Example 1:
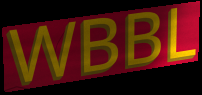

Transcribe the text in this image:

WBBL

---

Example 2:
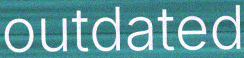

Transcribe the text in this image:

outdated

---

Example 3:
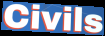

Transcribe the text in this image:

Civils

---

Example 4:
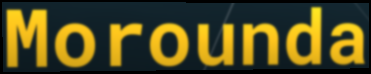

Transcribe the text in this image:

Morounda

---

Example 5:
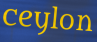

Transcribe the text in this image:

ceylon